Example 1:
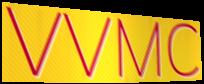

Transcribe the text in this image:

VVMC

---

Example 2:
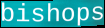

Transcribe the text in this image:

bishops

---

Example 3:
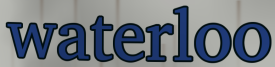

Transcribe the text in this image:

waterloo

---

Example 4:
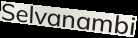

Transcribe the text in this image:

Selvanambi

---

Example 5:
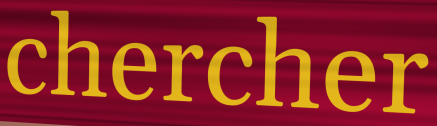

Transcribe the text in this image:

chercher